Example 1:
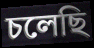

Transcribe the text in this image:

চলেছি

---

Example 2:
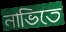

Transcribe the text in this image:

নাভিতে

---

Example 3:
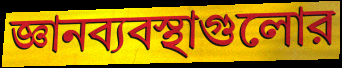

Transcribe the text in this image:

জ্ঞানব্যবস্থাগুলোর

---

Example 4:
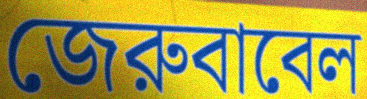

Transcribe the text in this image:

জেরুবাবেল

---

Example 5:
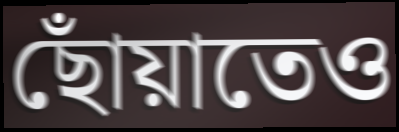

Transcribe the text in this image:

ছোঁয়াতেও